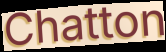
Chatton